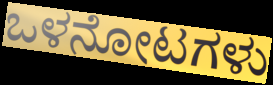
ಒಳನೋಟಗಳು